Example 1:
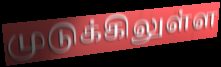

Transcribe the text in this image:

முடுக்கிலுள்ள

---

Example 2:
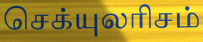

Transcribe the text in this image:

செக்யுலரிசம்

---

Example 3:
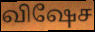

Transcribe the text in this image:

விஷேச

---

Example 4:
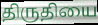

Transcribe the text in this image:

திருதியை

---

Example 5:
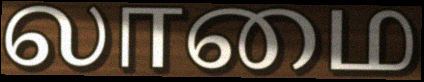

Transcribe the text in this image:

லாமை